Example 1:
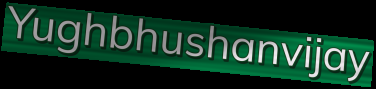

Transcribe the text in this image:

Yughbhushanvijay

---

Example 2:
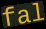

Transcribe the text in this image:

fal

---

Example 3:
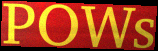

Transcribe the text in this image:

POWs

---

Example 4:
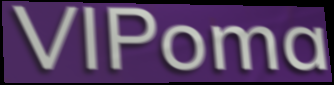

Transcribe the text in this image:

VIPoma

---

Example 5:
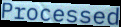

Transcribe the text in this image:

Processed